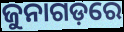
ଜୁନାଗଡ଼ରେ